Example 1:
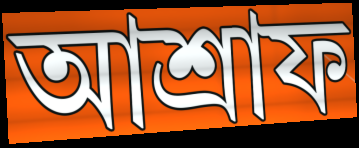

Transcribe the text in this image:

আশ্রাফ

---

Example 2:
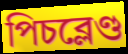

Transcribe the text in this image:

পিচব্লেণ্ড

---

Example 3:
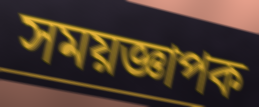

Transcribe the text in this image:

সময়জ্ঞাপক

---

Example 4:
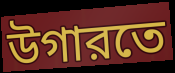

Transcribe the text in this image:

উগারতে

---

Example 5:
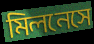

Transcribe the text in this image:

মিলনেসে